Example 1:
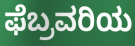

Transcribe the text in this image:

ಫೆಬ್ರವರಿಯ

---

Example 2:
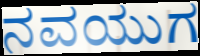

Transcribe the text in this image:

ನವಯುಗ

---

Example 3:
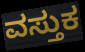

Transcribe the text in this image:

ವಸ್ತುಕ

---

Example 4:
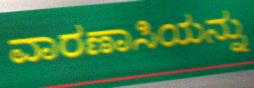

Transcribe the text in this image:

ವಾರಣಾಸಿಯನ್ನು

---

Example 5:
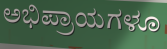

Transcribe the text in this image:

ಅಭಿಪ್ರಾಯಗಳೂ